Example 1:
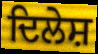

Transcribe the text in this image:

ਦਿਲੇਸ਼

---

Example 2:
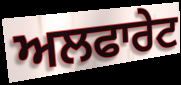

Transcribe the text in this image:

ਅਲਫਾਰੇਟ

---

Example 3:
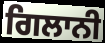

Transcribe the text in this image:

ਗਿਲਾਨੀ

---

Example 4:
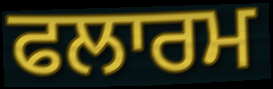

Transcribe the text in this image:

ਫਲਾਰਮ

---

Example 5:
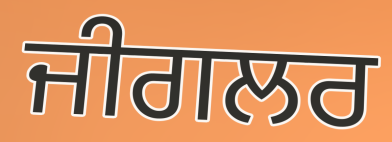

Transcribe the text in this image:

ਜੀਗਲਰ